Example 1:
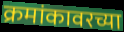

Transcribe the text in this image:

क्रमांकावरच्या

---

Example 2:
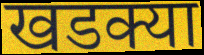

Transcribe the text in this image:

खडक्या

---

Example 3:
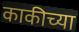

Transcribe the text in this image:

काकीच्या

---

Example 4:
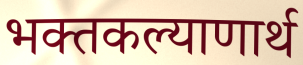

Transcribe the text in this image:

भक्तकल्याणार्थ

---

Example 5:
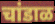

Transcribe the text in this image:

चांडाळ